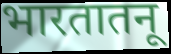
भारतातनू